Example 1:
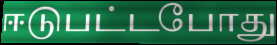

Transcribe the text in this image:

ஈடுபட்டபோது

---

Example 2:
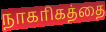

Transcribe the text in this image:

நாகரிகத்தை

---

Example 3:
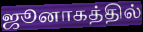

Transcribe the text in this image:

ஜூனாகத்தில்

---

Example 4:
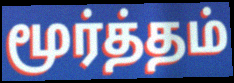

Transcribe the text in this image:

மூர்த்தம்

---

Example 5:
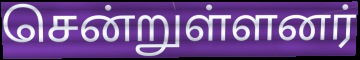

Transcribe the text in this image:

சென்றுள்ளனர்